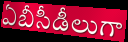
ఏబీసీడీలుగా